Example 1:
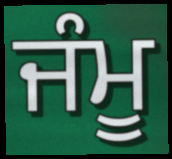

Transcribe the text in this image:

ਜੰਮੂ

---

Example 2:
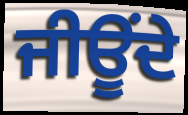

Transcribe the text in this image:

ਜੀਊਂਦੇ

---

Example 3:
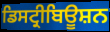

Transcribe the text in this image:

ਡਿਸਟ੍ਰੀਬਿਊਸ਼ਨ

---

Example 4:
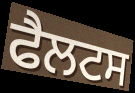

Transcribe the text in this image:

ਫੈਲਟਸ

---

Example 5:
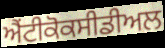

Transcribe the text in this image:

ਐਂਟੀਕੋਕਸੀਡੀਅਲ